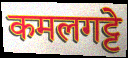
कमलगट्टे